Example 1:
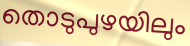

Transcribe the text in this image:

തൊടുപുഴയിലും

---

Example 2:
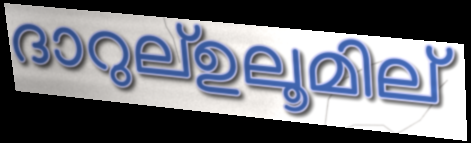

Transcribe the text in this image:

ദാറുല്ഉലൂമില്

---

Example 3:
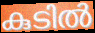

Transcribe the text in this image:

കുടിൽ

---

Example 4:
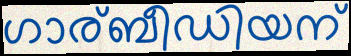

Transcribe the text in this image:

ഗാര്ബീഡിയന്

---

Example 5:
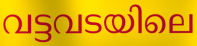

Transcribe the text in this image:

വട്ടവടയിലെ